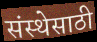
संस्थेसाठी